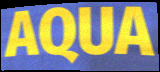
AQUA